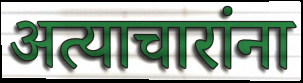
अत्याचारांना